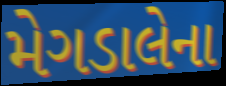
મેગડાલેના